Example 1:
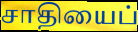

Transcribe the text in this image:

சாதியைப்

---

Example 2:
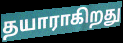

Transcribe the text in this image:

தயாராகிறது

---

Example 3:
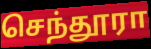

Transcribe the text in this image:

செந்தூரா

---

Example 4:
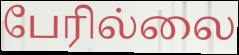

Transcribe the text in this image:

பேரில்லை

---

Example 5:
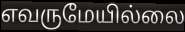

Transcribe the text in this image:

எவருமேயில்லை